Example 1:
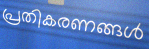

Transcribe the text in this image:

പ്രതികരണങ്ങൾ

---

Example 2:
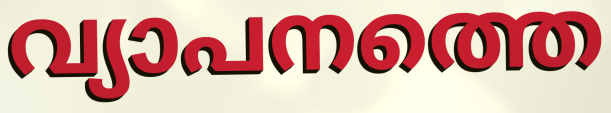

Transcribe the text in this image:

വ്യാപനത്തെ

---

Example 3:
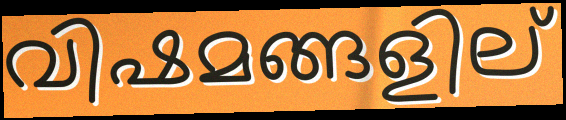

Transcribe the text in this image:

വിഷമങ്ങളില്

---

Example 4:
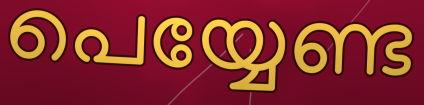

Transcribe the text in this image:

പെയ്യേണ്ട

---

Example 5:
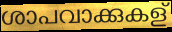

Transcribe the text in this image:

ശാപവാക്കുകള്